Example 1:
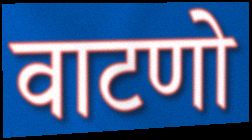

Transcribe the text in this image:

वाटणो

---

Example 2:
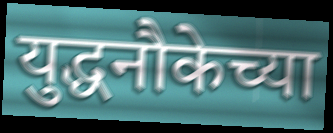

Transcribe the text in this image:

युद्धनौकेच्या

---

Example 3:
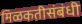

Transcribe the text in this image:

मिळकतीसंबंधी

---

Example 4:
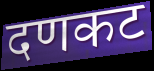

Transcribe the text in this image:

दणकट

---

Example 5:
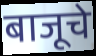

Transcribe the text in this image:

बाजूचे